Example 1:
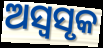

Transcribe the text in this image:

ଅସ୍ୱସୃକ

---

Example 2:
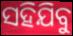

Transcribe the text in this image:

ସହିଯିବୁ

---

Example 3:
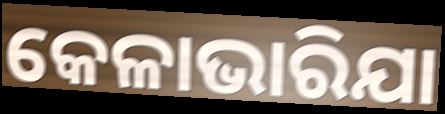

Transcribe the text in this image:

କେଳାଭାରିଯା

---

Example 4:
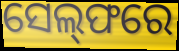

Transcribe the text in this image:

ସେଲ୍‌ଫରେ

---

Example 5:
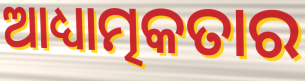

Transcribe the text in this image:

ଆଧ୍ୟାତ୍ମକତାର